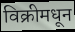
विक्रीमधून